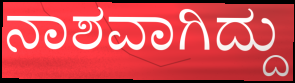
ನಾಶವಾಗಿದ್ದು